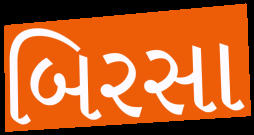
બિરસા